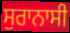
ਸੁਰਾਨਾਸੀ